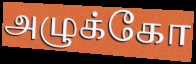
அழுக்கோ